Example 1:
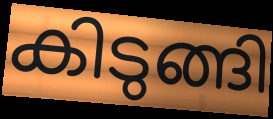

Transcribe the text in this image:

കിടുങ്ങി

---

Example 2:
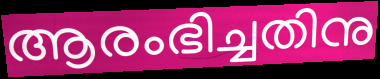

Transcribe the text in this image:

ആരംഭിച്ചതിനു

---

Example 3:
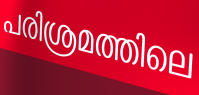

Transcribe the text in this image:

പരിശ്രമത്തിലെ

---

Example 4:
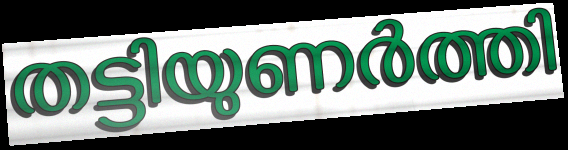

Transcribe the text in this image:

തട്ടിയുണർത്തി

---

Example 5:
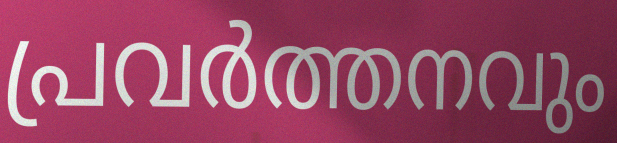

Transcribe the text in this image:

പ്രവർത്തനവും